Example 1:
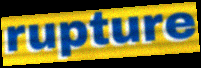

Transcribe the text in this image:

rupture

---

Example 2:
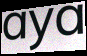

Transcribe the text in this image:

aya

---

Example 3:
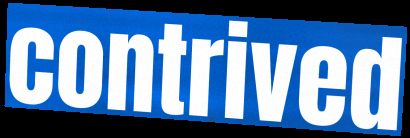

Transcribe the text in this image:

contrived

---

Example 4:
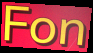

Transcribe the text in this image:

Fon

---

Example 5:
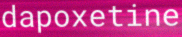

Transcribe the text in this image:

dapoxetine